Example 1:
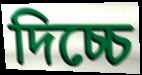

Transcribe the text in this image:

দিচ্চে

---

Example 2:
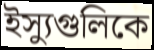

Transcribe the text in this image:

ইস্যুগুলিকে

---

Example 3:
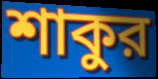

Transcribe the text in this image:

শাকুর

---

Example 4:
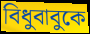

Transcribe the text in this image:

বিধুবাবুকে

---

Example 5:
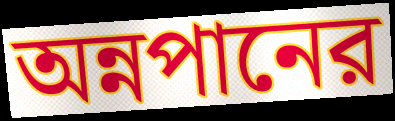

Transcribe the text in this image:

অন্নপানের